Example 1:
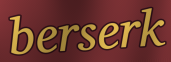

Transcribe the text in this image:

berserk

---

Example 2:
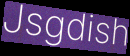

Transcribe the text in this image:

Jsgdish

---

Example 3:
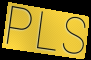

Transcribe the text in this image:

PLS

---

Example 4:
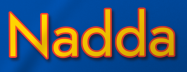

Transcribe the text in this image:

Nadda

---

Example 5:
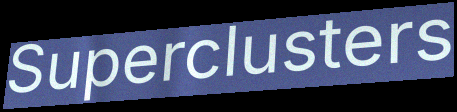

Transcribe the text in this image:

Superclusters